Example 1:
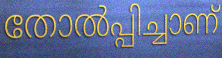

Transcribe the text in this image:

തോൽപ്പിച്ചാണ്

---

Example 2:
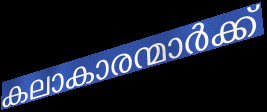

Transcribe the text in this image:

കലാകാരന്മാർക്ക്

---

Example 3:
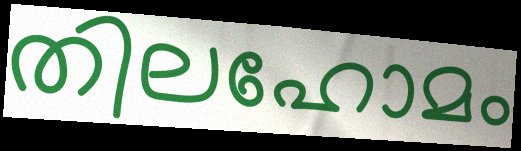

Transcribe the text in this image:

തിലഹോമം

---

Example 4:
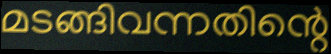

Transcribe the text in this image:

മടങ്ങിവന്നതിന്റെ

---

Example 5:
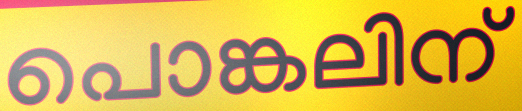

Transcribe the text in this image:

പൊങ്കലിന്